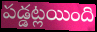
పడ్డట్లయింది